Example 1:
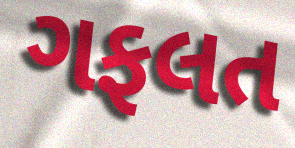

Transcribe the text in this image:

ગફલત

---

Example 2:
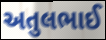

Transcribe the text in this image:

અતુલભાઈ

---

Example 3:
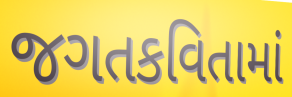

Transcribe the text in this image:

જગતકવિતામાં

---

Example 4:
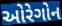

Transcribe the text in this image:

ઓરેગોન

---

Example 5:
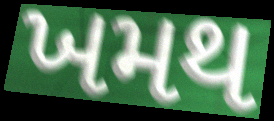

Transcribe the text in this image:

ખમથ